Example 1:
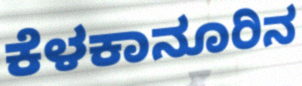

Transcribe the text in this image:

ಕೆಳಕಾನೂರಿನ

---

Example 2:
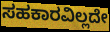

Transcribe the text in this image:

ಸಹಕಾರವಿಲ್ಲದೇ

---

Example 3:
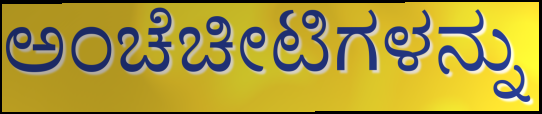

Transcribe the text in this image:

ಅಂಚೆಚೀಟಿಗಳನ್ನು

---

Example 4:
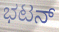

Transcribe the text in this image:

ಭಟನ್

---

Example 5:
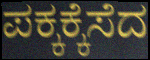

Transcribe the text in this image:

ಪಕ್ಕಕ್ಕೆಸೆದ